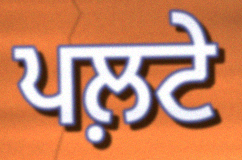
ਪਲ਼ਟੇ